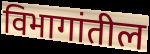
विभागांतील